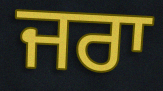
ਜਰਾ